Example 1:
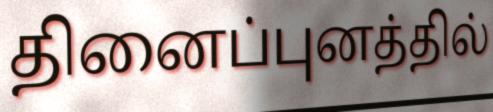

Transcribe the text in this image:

தினைப்புனத்தில்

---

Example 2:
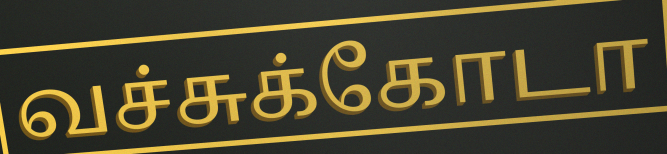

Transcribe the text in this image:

வச்சுக்கோடா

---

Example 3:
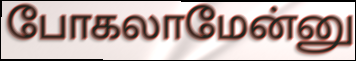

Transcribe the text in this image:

போகலாமேன்னு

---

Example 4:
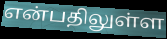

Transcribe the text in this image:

என்பதிலுள்ள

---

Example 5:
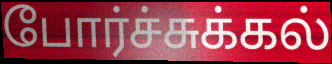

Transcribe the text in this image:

போர்ச்சுக்கல்